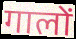
गालों